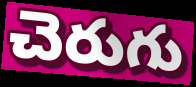
చెరుగు